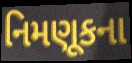
નિમણૂકના